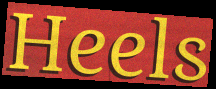
Heels